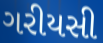
ગરીયસી